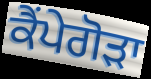
ਕੈਂਪੇਗੋੜਾ